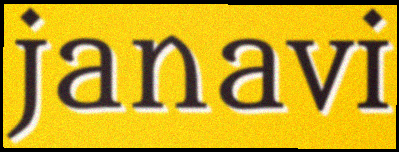
janavi